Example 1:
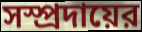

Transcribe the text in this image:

সস্প্রদায়ের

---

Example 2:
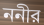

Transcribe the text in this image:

ননীর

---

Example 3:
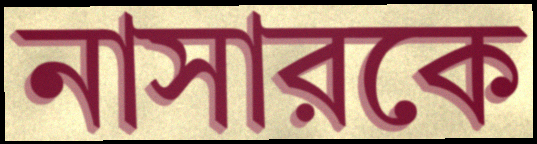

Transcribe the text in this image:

নাসারকে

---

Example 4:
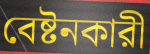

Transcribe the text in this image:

বেষ্টনকারী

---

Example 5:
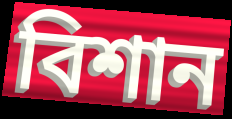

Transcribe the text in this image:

বিশান